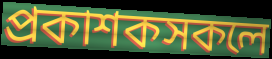
প্ৰকাশকসকলে